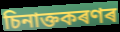
চিনাক্তকৰণৰ